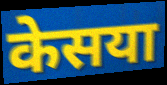
केसया